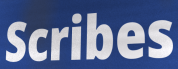
Scribes